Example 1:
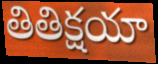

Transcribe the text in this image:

తితిక్షయా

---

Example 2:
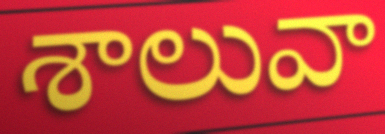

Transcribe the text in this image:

శాలువా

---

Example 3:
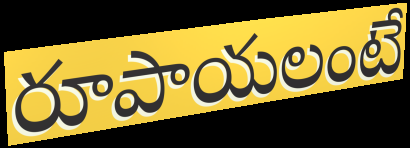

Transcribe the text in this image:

రూపాయలంటే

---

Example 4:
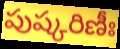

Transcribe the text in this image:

పుష్కరిణీః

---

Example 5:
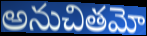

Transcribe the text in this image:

అనుచితమో